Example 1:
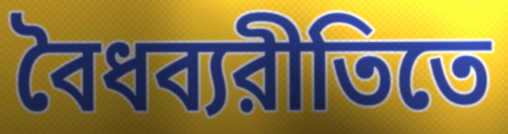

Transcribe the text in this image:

বৈধব্যরীতিতে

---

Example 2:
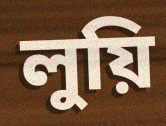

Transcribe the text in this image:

লুয়ি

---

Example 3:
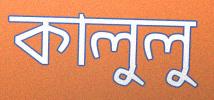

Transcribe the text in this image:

কালুলু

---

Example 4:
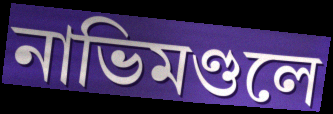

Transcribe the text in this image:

নাভিমণ্ডলে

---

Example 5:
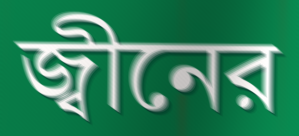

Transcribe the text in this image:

জ্বীনের